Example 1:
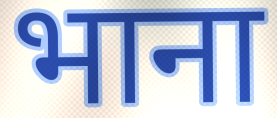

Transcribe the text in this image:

भाना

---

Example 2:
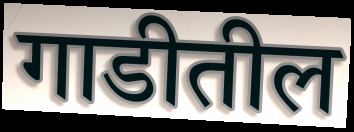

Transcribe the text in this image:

गाडीतील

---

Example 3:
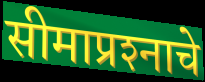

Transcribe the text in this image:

सीमाप्रश्नाचे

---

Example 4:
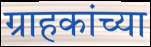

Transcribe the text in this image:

ग्राहकांच्या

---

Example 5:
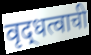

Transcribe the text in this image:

वृद्धत्वाची